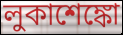
লুকাশেঙ্কো